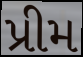
પ્રીમ